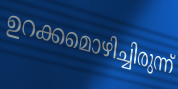
ഉറക്കമൊഴിച്ചിരുന്ന്